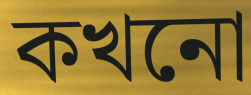
কখনো